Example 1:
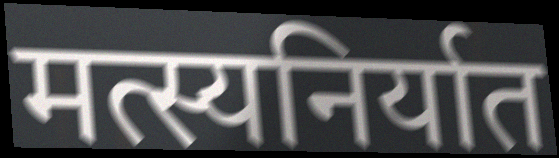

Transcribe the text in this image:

मत्स्यनिर्यात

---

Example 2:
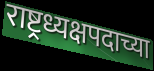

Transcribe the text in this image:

राष्ट्रध्यक्षपदाच्या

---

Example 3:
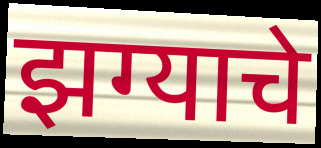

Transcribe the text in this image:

झग्याचे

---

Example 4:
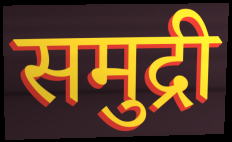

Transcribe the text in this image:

समुद्री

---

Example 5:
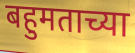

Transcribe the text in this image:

बहुमताच्या